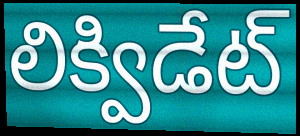
లిక్విడేట్